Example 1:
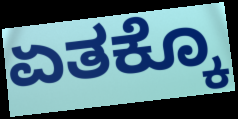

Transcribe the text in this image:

ಏತಕ್ಕೊ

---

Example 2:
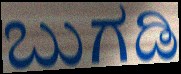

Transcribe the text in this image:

ಬುಗಡಿ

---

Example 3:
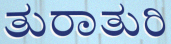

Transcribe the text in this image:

ತುರಾತುರಿ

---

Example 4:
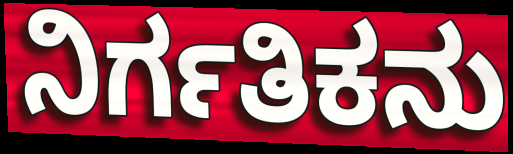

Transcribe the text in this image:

ನಿರ್ಗತಿಕನು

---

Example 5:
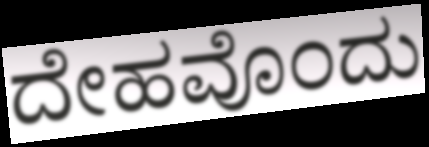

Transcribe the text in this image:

ದೇಹವೊಂದು